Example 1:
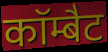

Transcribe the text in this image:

कॉम्बैट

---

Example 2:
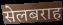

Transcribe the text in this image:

सेलबराह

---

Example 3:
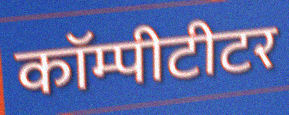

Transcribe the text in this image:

कॉम्पीटीटर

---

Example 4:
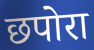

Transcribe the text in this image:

छपोरा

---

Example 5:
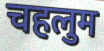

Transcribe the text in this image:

चहलुम